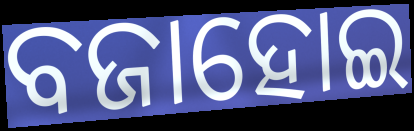
ବଜାହୋଇ